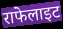
राफेलाइट